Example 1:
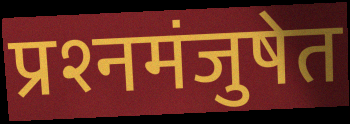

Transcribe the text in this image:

प्रश्नमंजुषेत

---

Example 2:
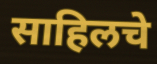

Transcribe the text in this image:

साहिलचे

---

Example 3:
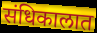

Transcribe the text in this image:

संधिकालात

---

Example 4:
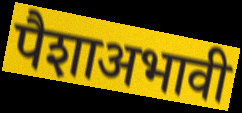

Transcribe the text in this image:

पैशाअभावी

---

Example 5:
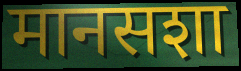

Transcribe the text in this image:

मानसशा